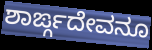
ಶಾರ್ಙ್ಗದೇವನೂ